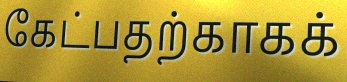
கேட்பதற்காகக்